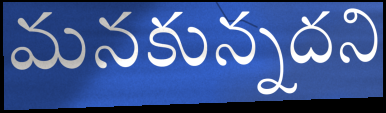
మనకున్నదని